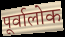
पूर्वालोक